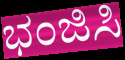
ಭಂಜಿಸಿ